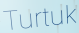
Turtuk